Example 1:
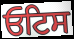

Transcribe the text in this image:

ਓਟਿਸ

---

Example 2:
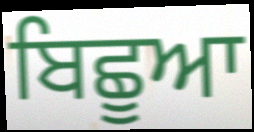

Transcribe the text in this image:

ਬਿਛੂਆ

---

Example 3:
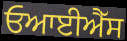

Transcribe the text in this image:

ਓਆਈਐੱਸ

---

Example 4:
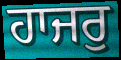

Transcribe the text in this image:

ਹਾਜਰੁ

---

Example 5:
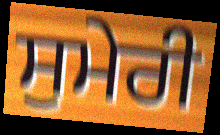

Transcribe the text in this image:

ਸੁਮੇਰੀ